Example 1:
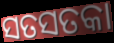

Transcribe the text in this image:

ସତସତକା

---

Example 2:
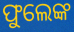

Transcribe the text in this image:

ଫୁଲେଙ୍କ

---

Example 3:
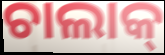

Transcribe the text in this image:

ଚାଲାକ୍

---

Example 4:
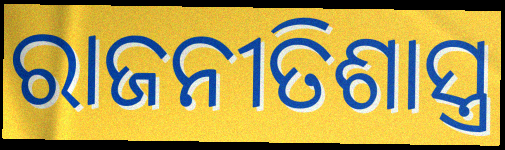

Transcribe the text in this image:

ରାଜନୀତିଶାସ୍ତ୍ର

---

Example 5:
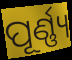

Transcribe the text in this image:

ପୂର୍ଣ୍ଣ୍ୟ